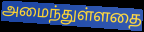
அமைந்துள்ளதை